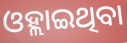
ଓହ୍ଲାଇଥିବା